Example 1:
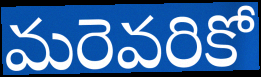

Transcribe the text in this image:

మరెవరికో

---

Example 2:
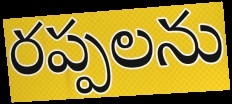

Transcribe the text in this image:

రప్పలను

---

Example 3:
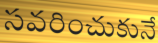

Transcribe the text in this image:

సవరించుకునే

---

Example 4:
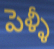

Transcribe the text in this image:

పెళ్ళీ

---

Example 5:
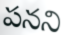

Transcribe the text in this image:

పనని